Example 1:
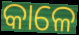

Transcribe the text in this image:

କାଳେ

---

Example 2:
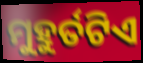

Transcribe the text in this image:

ମୁହୁର୍ତଟିଏ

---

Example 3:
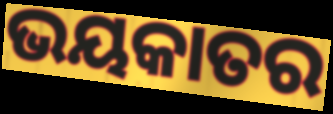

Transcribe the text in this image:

ଭୟକାତର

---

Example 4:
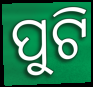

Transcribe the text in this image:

ପୁଟି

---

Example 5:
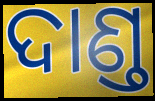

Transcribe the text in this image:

ଦାଣ୍ଡ